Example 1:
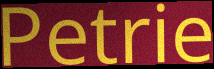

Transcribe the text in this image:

Petrie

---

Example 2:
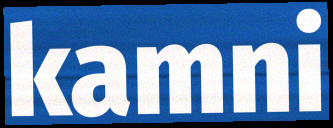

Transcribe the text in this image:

kamni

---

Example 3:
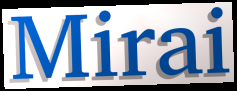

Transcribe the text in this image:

Mirai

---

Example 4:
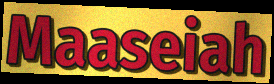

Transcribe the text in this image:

Maaseiah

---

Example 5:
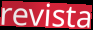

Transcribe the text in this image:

revista